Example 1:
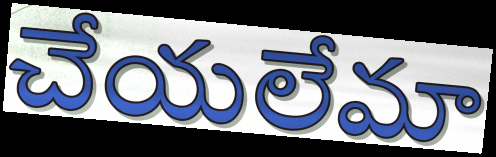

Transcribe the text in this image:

చేయలేమా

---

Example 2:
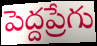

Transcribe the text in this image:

పెద్దప్రేగు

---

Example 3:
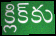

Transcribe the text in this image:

క్లిక్‌కు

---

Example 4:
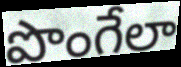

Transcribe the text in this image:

పొంగేలా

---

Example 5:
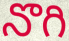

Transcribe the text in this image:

నొగి